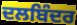
ਦਲਬਿੰਦਰ